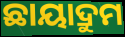
ଛାୟାଦ୍ରୁମ